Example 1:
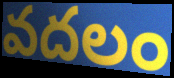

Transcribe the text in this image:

వదలం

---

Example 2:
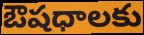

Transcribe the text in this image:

ఔషధాలకు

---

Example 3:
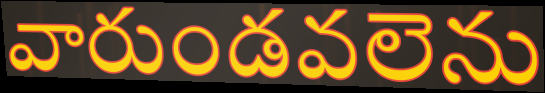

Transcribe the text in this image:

వారుండవలెను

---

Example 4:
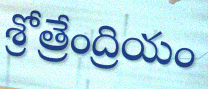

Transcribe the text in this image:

శ్రోత్రేంద్రియం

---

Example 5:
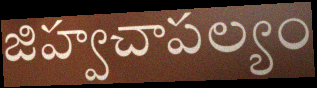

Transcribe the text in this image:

జిహ్వచాపల్యం